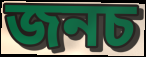
জনচ